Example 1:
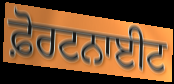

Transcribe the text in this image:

ਫ਼ੋਰਟਨਾਈਟ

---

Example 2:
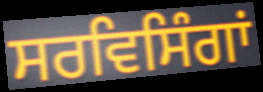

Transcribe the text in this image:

ਸਰਵਿਸਿੰਗਾਂ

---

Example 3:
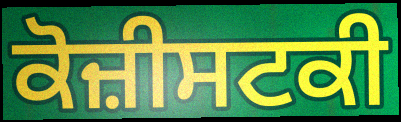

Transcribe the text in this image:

ਕੋਜ਼ੀਸਟਕੀ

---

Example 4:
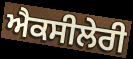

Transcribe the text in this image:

ਐਕਸੀਲੇਰੀ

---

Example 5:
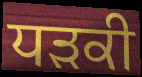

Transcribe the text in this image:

ਧੜਕੀ